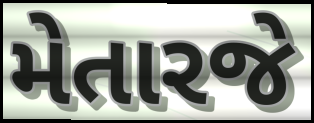
મેતારજે